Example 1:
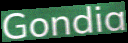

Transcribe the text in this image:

Gondia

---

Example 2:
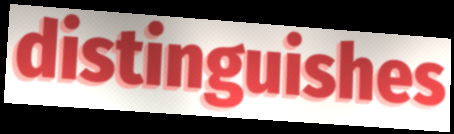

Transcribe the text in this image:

distinguishes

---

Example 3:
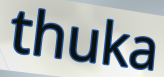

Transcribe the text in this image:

thuka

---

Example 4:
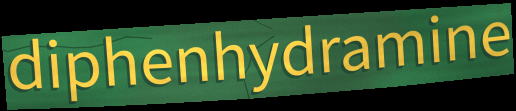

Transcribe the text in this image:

diphenhydramine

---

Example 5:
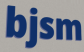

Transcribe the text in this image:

bjsm